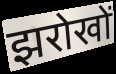
झरोखों